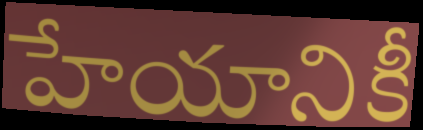
హేయానికీ